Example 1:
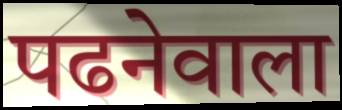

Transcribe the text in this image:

पढनेवाला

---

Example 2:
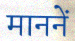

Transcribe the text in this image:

माननें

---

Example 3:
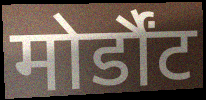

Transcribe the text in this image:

मोर्डौंट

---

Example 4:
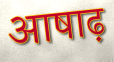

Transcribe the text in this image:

आषाढ़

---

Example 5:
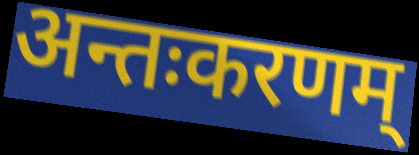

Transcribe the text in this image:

अन्तःकरणम्